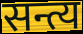
सन्त्य